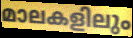
മാലകളിലും